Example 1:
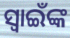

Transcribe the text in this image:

ସ୍ଵାଇଁଙ୍କ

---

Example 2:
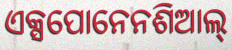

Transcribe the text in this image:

ଏକ୍ସପୋନେନଶିଆଲ୍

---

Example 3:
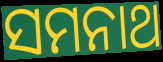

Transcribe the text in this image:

ସମନାଥ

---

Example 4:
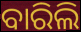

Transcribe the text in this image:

ବାରିଲି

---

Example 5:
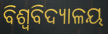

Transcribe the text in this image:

ବିଶ୍ଵବିଦ୍ୟାଳୟ